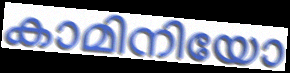
കാമിനിയോ